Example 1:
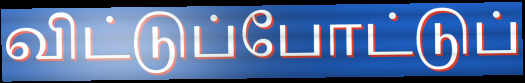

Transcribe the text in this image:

விட்டுப்போட்டுப்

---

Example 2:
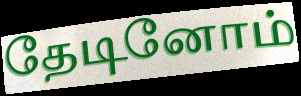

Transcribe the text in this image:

தேடினோம்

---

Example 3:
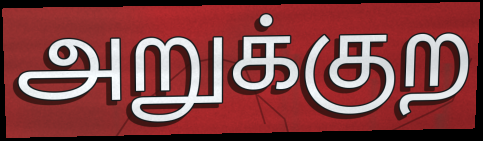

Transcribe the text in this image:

அறுக்குற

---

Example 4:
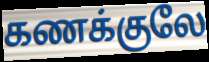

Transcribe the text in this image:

கணக்குலே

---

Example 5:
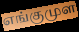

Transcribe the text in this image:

எங்குமுள